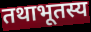
तथाभूतस्य